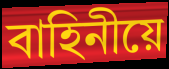
বাহিনীয়ে